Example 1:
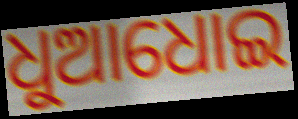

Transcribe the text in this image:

ଧୁଆଧୋଇ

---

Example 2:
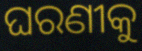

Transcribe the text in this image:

ଘରଣୀକୁ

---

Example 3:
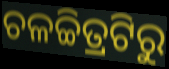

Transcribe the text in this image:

ଚଳଚ୍ଚିତ୍ରଟିରୁ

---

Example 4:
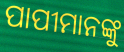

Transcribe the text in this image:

ପାପୀମାନଙ୍କୁ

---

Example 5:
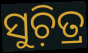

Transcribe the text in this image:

ସୁଚ଼ିତ୍ର